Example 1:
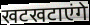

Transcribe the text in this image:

खटखटाएंगे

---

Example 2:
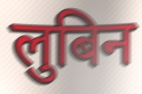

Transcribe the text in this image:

लुबिन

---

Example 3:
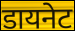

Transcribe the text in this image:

डायनेट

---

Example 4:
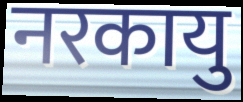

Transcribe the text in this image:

नरकायु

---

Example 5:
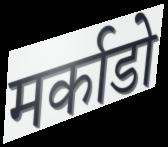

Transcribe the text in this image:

मर्काडो